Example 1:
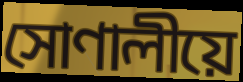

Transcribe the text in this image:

সোণালীয়ে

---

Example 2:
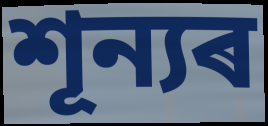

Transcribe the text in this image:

শূন্যৰ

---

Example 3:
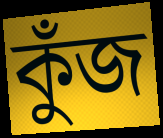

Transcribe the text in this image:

কুঁজ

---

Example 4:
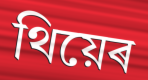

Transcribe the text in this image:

থিয়েৰ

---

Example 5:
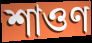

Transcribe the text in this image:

শাওণ